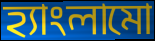
হ্যাংলামো